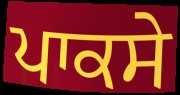
ਪਾਕਸੇ